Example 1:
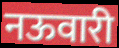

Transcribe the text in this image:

नऊवारी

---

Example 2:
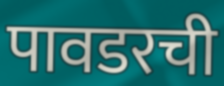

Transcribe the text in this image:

पावडरची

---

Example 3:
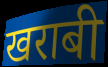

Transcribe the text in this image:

खराबी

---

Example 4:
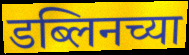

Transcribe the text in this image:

डब्लिनच्या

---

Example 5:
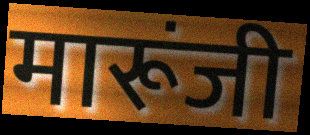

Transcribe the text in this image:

मारूंजी